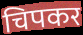
चिपकर